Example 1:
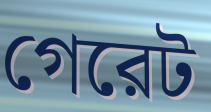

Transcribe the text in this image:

গেরেট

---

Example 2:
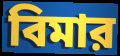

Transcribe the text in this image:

বিমার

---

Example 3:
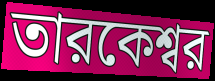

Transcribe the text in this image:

তারকেশ্বর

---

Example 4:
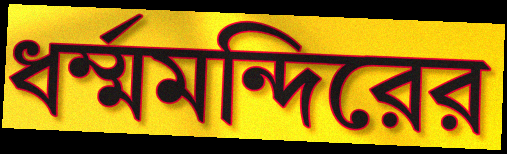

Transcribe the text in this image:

ধর্ম্মমন্দিরের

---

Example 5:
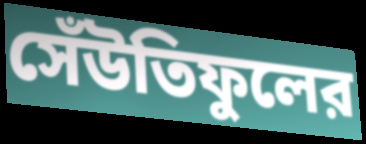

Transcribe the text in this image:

সেঁউতিফুলের